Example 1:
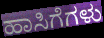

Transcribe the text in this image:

ಹಾಸಿಗೆಗಳು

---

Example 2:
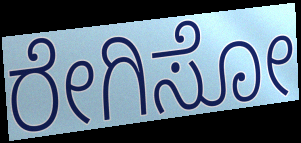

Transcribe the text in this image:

ರೇಗಿಸೋ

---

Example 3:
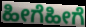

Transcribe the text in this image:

ಹೀಗೆಹೀಗೆ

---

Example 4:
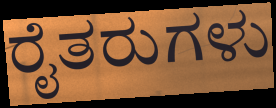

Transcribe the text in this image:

ರೈತರುಗಳು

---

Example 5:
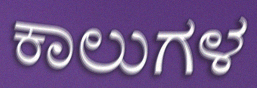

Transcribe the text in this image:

ಕಾಲುಗಳ